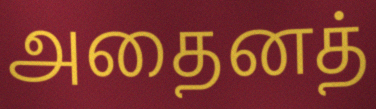
அதைனத்